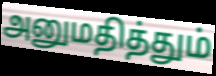
அனுமதித்தும்